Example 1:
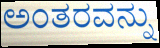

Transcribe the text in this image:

ಅಂತರವನ್ನು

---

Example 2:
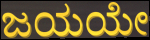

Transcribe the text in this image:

ಜಯಯೇ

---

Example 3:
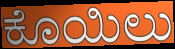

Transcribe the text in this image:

ಕೊಯಿಲು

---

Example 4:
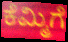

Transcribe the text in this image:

ಕೆಮ್ಮಿಗೆ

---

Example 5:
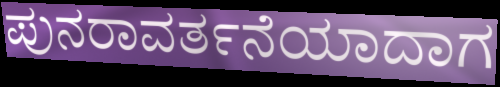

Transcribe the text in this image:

ಪುನರಾವರ್ತನೆಯಾದಾಗ